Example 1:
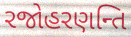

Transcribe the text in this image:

રજોહરણન્તિ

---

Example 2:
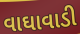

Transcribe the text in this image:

વાઘાવાડી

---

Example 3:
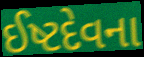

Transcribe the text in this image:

ઈષ્ટદેવના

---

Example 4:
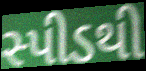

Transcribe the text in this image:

સ્પીડથી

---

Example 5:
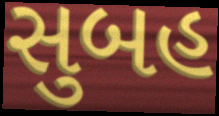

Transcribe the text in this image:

સુબહ